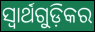
ସ୍ୱାର୍ଥଗୁଡ଼ିକର